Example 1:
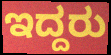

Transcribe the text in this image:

ಇದ್ದರು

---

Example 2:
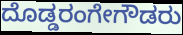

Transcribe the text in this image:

ದೊಡ್ಡರಂಗೇಗೌಡರು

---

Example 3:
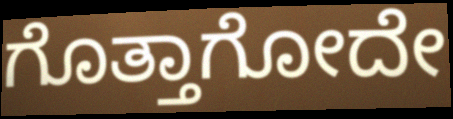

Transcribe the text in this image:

ಗೊತ್ತಾಗೋದೇ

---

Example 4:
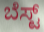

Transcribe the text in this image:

ಬೆಸ್ಟ್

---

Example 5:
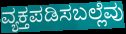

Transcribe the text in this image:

ವ್ಯಕ್ತಪಡಿಸಬಲ್ಲೆವು